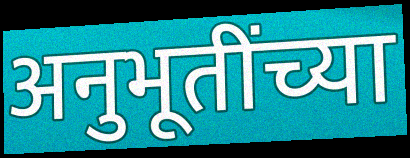
अनुभूतींच्या